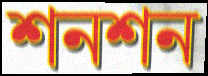
শনশন